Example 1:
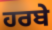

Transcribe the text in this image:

ਹਰਬੇ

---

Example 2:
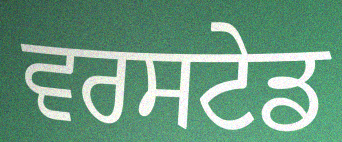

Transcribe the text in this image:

ਵਰਸਟੇਡ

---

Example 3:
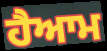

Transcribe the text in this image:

ਹੈਆਮ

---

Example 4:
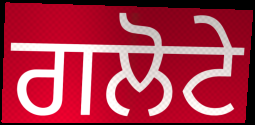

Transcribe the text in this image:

ਗਲੋਟੇ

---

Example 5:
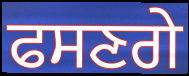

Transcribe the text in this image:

ਫਸਣਗੇ